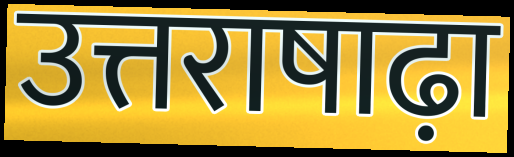
उत्तराषाढ़ा